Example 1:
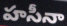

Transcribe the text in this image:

హసీనా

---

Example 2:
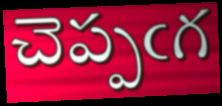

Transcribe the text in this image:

చెప్పఁగ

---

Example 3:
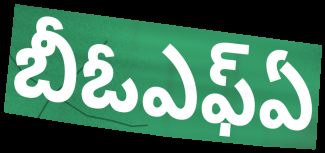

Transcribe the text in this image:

బీఓఎఫ్ఏ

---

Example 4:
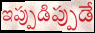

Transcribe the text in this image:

ఇప్పుడిప్పుడే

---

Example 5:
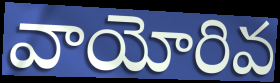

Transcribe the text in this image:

వాయోరివ